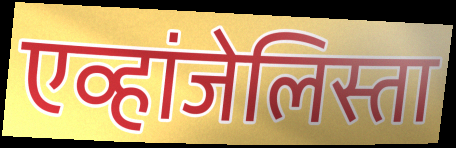
एव्हांजेलिस्ता